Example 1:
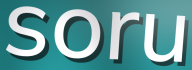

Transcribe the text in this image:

soru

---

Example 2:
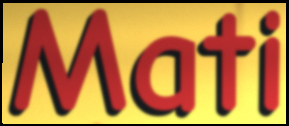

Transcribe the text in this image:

Mati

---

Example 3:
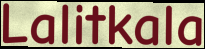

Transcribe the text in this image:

Lalitkala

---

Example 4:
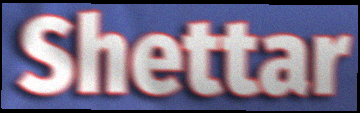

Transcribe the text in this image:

Shettar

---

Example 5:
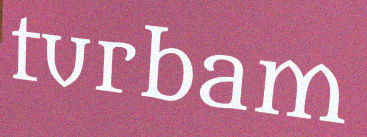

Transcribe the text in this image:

turbam